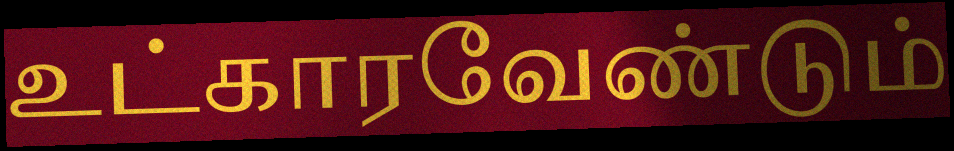
உட்காரவேண்டும்